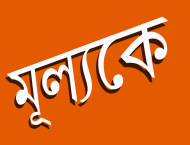
মূল্যকে